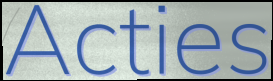
Acties